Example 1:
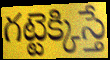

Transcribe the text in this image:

గట్టెక్కిస్తే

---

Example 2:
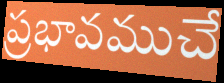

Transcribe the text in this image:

ప్రభావముచే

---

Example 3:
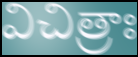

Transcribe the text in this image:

విచిత్రాః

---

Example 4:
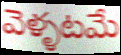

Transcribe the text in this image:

వెళ్ళటమే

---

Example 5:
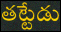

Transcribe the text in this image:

తట్టేడు